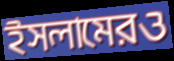
ইসলামেরও